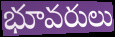
భూవరులు